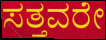
ಸತ್ತವರೇ